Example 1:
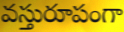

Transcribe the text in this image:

వస్తురూపంగా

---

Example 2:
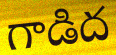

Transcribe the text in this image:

గాడిద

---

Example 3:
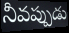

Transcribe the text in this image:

నీవప్పుడు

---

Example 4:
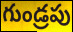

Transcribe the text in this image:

గుండ్రపు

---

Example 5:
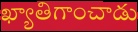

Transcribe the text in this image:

ఖ్యాతిగాంచాడు